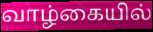
வாழ்கையில்